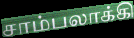
சாம்பலாக்கி